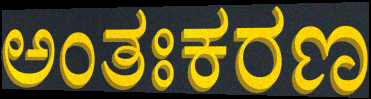
ಅಂತಃಕರಣ